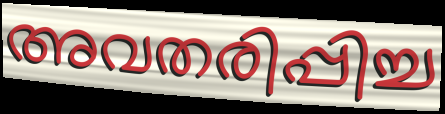
അവതരിപ്പിച്ച